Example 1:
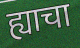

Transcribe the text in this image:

ह्याचा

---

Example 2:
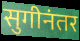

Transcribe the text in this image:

सुगीनंतर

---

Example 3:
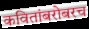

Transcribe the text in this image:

कवितांबरोबरच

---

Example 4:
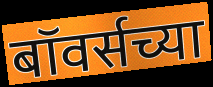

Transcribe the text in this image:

बॉवर्सच्या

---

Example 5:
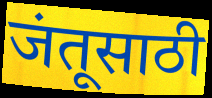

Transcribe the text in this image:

जंतूसाठी